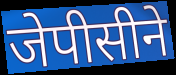
जेपीसीने